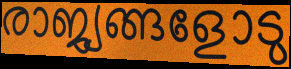
രാജ്യങ്ങളോടു